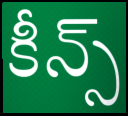
కీన్స్